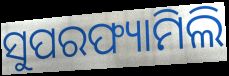
ସୁପରଫ୍ୟାମିଲି